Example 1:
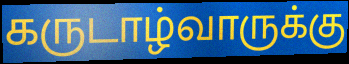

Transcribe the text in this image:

கருடாழ்வாருக்கு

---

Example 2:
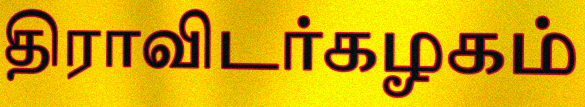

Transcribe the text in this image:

திராவிடர்கழகம்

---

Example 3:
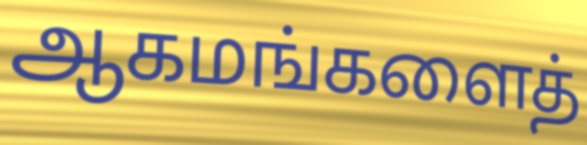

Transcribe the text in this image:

ஆகமங்களைத்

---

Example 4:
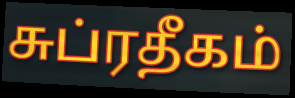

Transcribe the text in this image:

சுப்ரதீகம்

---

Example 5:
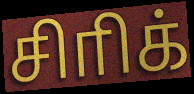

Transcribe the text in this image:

சிரிக்